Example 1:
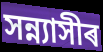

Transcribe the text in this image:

সন্ন্যাসীৰ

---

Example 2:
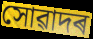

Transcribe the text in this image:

সোৱাদৰ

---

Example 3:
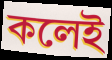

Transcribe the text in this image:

কলেই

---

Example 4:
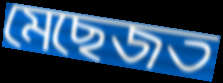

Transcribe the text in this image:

মেছেজত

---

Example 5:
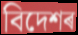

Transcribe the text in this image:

বিদেশৰ